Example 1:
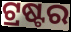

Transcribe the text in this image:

ଟ୍ରଷ୍ଟର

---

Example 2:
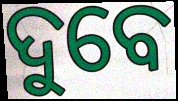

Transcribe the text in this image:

ଦୁବେ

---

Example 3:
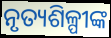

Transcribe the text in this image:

ନୃତ୍ୟଶିଳ୍ପୀଙ୍କ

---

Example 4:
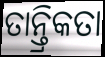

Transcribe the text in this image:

ତାନ୍ତ୍ରିକତା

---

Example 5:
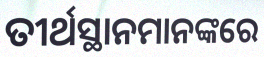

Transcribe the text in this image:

ତୀର୍ଥସ୍ଥାନମାନଙ୍କରେ